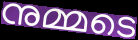
നുമ്മടെ